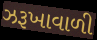
ઝરૂખાવાળી